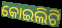
କୋଇଲିଟି